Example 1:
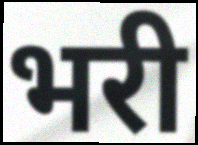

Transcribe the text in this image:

भरी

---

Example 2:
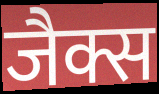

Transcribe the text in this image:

जैक्स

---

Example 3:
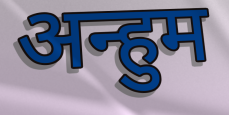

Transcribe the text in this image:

अन्हुम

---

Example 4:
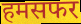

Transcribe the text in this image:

हमसफर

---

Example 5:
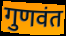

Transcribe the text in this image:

गुणवंत